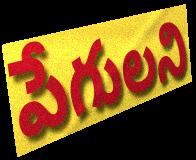
పేగులని